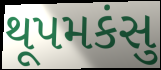
થૂપમકંસુ